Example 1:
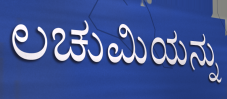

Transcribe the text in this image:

ಲಚುಮಿಯನ್ನು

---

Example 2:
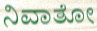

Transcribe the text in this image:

ನಿವಾತೋ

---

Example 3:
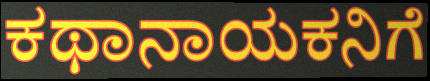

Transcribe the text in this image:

ಕಥಾನಾಯಕನಿಗೆ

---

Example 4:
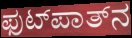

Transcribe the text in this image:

ಫುಟ್‌ಪಾತ್‌ನ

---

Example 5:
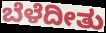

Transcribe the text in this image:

ಬೆಳೆದೀತು